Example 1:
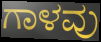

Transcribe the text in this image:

ಗಾಳವು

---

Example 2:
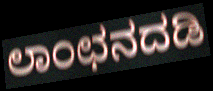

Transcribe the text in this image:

ಲಾಂಛನದಡಿ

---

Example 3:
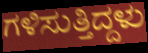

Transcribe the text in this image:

ಗಳಿಸುತ್ತಿದ್ದಳು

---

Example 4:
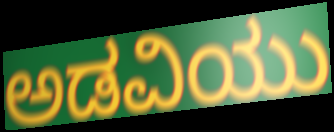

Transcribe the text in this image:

ಅಡವಿಯು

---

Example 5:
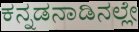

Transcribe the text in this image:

ಕನ್ನಡನಾಡಿನಲ್ಲೇ